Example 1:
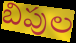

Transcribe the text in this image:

బిపుల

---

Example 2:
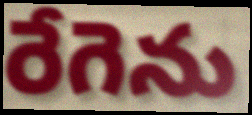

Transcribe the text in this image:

రేగెను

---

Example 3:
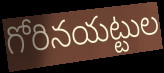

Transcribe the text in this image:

గోరినయట్టుల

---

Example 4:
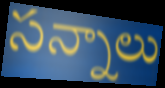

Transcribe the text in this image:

సన్నాలు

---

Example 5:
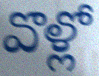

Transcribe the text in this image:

వొళ్లో